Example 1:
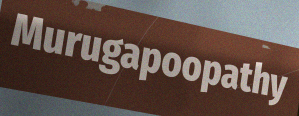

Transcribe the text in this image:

Murugapoopathy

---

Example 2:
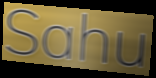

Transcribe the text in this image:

Sahu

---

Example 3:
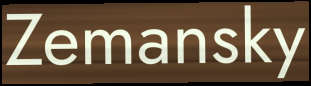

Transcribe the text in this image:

Zemansky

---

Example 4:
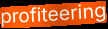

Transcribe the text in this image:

profiteering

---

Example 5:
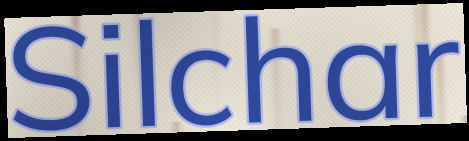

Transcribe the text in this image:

Silchar